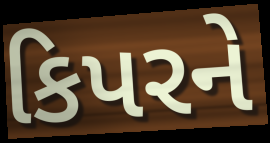
કિપરને